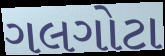
ગલગોટા